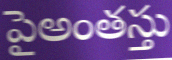
పైఅంతస్తు